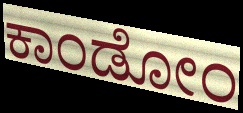
ಕಾಂಡೋಂ